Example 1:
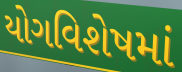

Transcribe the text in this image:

યોગવિશેષમાં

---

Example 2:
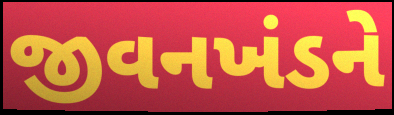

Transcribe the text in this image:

જીવનખંડને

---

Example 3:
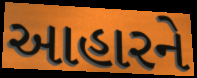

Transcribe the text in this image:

આહારને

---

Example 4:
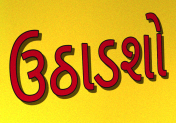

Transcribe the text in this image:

ઉઠાડશો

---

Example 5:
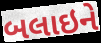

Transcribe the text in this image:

બલાઇને